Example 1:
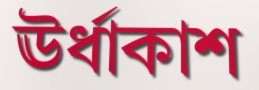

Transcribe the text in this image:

ঊর্ধাকাশ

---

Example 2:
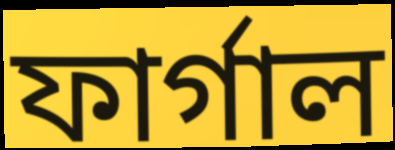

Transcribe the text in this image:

ফার্গাল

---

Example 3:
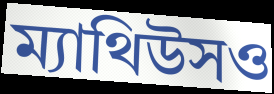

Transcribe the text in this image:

ম্যাথিউসও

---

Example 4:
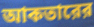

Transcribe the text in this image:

আকতারের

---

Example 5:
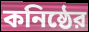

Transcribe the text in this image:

কনিষ্ঠের